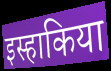
इस्हाकिया